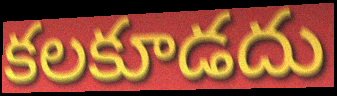
కలకూడదు